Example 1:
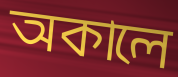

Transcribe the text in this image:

অকালে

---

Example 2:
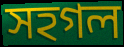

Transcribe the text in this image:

সহগল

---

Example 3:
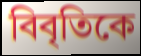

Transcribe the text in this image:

বিবৃতিকে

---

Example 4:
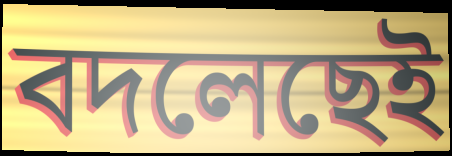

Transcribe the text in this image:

বদলেছেই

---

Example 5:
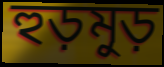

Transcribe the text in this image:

হুড়মুড়